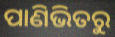
ପାଣିଭିତରୁ